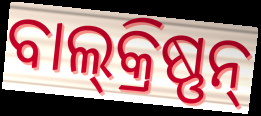
ବାଲ୍‍କ୍ରିଷ୍ଣନ୍